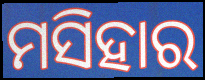
ମସିହାର